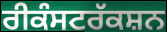
ਰੀਕੰਸਟਰੱਕਸ਼ਨ